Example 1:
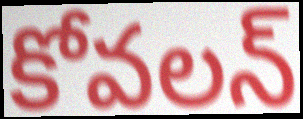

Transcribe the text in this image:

కోవలన్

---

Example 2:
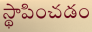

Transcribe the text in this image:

స్థాపించడం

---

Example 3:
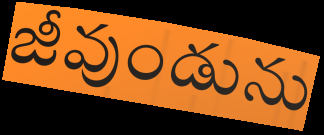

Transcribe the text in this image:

జీవుండును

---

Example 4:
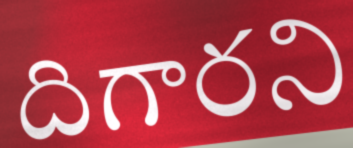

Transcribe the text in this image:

దిగారని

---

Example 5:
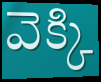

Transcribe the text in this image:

వెక్కి